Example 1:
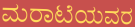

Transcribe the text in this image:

ಮರಾಟೆಯವರ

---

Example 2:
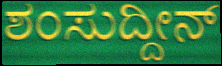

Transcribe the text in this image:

ಶಂಸುದ್ದೀನ್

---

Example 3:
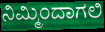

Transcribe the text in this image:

ನಿಮ್ಮಿಂದಾಗಲಿ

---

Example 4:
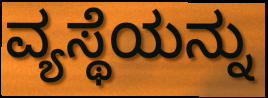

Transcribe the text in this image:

ವ್ಯಸ್ಥೆಯನ್ನು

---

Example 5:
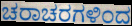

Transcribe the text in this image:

ಚರಾಚರಗಳಿಂದ